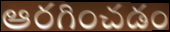
ఆరగించడం